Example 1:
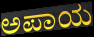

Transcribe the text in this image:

ಅಪಾಯ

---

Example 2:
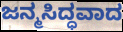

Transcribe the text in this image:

ಜನ್ಮಸಿದ್ಧವಾದ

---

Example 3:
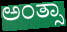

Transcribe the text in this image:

ಅಂತ್ಸಾ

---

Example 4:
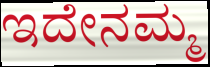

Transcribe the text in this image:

ಇದೇನಮ್ಮ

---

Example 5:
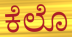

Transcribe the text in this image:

ಕೆಲೊ